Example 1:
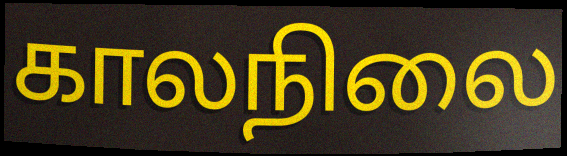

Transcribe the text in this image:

காலநிலை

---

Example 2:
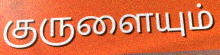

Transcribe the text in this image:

குருளையும்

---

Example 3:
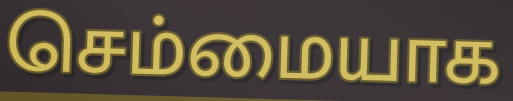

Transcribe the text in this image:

செம்மையாக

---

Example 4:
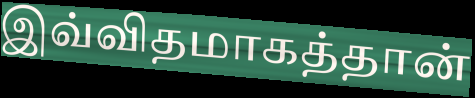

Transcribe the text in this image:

இவ்விதமாகத்தான்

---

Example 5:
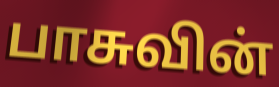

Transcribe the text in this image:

பாசுவின்